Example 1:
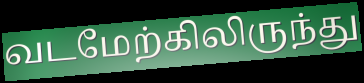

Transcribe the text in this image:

வடமேற்கிலிருந்து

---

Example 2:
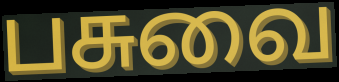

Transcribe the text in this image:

பசுவை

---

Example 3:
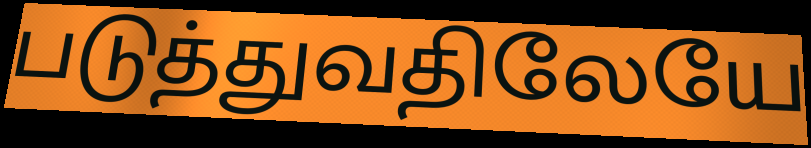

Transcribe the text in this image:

படுத்துவதிலேயே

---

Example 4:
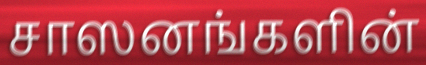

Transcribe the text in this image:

சாஸனங்களின்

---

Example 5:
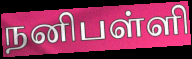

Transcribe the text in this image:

நனிபள்ளி